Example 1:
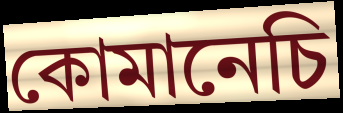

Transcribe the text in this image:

কোমানেচি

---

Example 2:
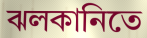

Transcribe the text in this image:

ঝলকানিতে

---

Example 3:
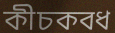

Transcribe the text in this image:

কীচকবধ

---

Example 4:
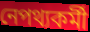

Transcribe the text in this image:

নেপথ্যকর্মী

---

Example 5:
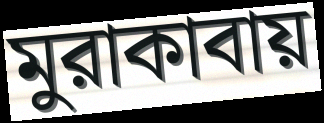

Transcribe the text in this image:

মুরাকাবায়